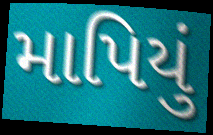
માપિયું